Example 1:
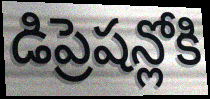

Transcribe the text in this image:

డిప్రెషన్లోకి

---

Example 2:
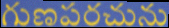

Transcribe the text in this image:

గుణపరచును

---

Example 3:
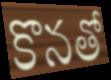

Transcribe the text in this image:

కొనతో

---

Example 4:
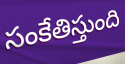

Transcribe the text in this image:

సంకేతిస్తుంది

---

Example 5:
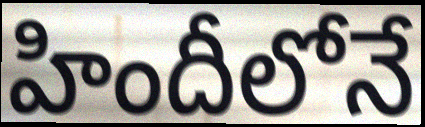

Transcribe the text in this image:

హిందీలోనే